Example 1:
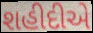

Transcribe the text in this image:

શહીદીએ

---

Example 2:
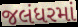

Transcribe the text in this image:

જલંધરમાં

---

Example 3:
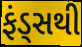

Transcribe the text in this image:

ફંડ્સથી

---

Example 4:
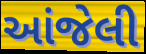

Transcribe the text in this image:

આંજેલી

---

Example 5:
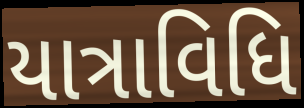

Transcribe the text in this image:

યાત્રાવિધિ